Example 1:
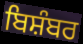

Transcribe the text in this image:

ਬਿਸ਼ੰਬਰ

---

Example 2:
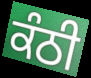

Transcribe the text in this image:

ਕੰਠੀ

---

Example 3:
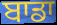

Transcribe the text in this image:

ਬਾਡਾ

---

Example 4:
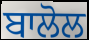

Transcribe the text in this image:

ਬਾਲੋਲ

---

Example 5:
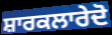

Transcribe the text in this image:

ਸ਼ਾਰਕਲਾਰੇਦੋ